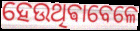
ହେଉଥିଵାବେଳେ